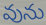
వును